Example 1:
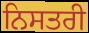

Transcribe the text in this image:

ਨਿਸਤਰੀ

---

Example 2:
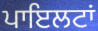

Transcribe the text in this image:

ਪਾਇਲਟਾਂ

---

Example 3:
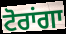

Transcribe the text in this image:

ਟੋਰਾਂਗਾ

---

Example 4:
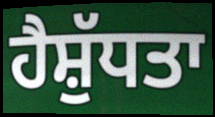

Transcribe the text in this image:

ਹੈਸ਼ੁੱਧਤਾ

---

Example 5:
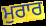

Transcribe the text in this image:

ਮੁਰਾਰ